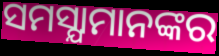
ସମସ୍ଯାମାନଙ୍କର